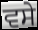
ਵਸੇ